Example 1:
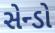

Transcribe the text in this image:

સેન્ડો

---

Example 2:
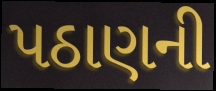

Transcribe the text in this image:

પઠાણની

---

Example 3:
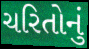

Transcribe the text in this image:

ચરિતોનું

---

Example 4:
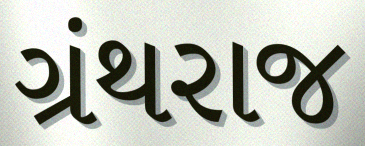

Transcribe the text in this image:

ગ્રંથરાજ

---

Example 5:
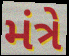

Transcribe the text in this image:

મંત્રે